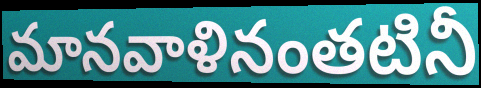
మానవాళినంతటినీ